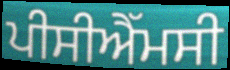
ਪੀਸੀਐੱਮਸੀ